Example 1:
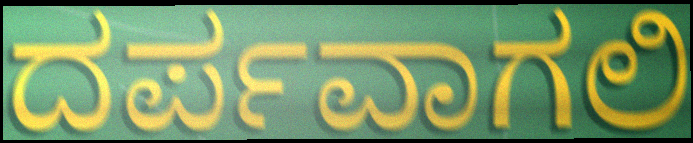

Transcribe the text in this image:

ದರ್ಪವಾಗಲಿ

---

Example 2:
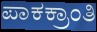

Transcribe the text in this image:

ಪಾಕಕ್ರಾಂತಿ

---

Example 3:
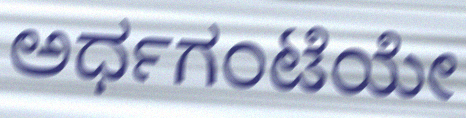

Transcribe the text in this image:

ಅರ್ಧಗಂಟೆಯೇ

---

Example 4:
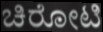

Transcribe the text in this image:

ಚಿರೋಟಿ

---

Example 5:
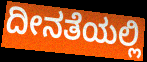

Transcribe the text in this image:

ದೀನತೆಯಲ್ಲಿ